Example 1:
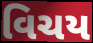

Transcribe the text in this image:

વિચય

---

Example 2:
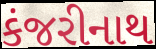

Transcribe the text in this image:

કંજરીનાથ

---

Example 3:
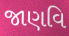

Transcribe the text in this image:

જાણવિ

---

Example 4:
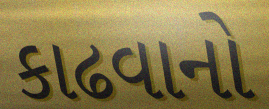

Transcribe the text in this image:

કાઢવાનો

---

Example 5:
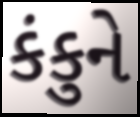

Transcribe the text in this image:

કંકુને